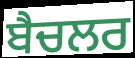
ਬੈਚਲਰ